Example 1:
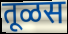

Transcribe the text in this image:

तूळस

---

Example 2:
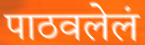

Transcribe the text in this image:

पाठवलेलं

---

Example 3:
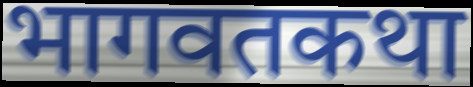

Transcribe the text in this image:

भागवतकथा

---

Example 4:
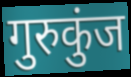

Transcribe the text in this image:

गुरुकुंज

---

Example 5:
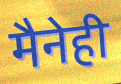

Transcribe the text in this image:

मैनेही